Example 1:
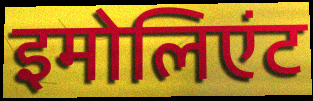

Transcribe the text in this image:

इमोलिएंट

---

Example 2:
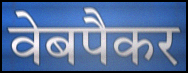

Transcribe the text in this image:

वेबपैकर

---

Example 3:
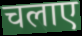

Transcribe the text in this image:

चलाए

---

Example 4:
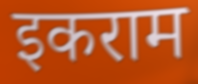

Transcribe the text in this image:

इकराम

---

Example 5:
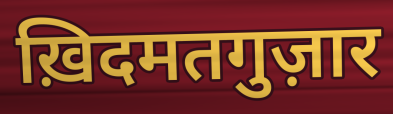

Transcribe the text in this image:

ख़िदमतगुज़ार